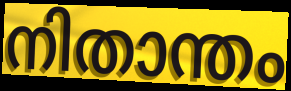
നിതാന്തം